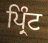
ਪ੍ਰਿੰਟ